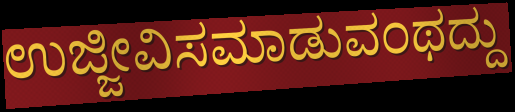
ಉಜ್ಜೀವಿಸಮಾಡುವಂಥದ್ದು